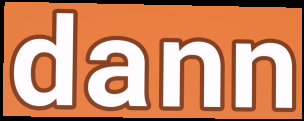
dann